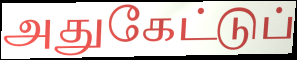
அதுகேட்டுப்